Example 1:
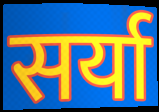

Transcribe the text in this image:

सर्या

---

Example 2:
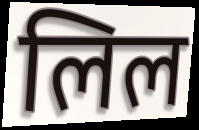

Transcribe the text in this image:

लिल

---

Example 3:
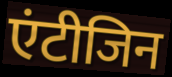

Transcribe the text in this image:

एंटीजिन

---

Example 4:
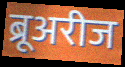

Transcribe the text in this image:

ब्रूअरीज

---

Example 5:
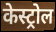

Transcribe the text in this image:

केस्ट्रोल